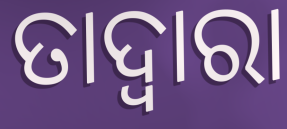
ତାଦ୍ବାରା